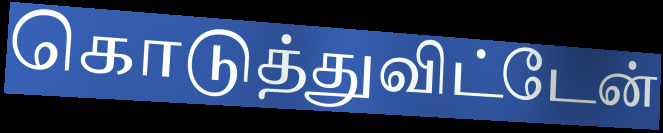
கொடுத்துவிட்டேன்